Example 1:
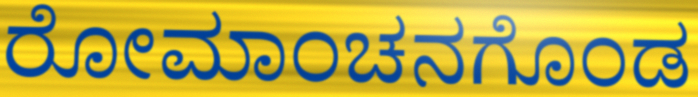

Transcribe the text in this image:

ರೋಮಾಂಚನಗೊಂಡ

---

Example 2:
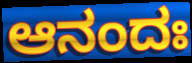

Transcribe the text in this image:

ಆನಂದಃ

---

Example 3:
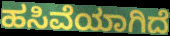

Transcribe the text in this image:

ಹಸಿವೆಯಾಗಿದೆ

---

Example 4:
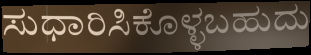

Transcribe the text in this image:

ಸುಧಾರಿಸಿಕೊಳ್ಳಬಹುದು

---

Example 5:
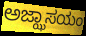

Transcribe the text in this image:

ಅಜ್ಝಾಸಯಂ